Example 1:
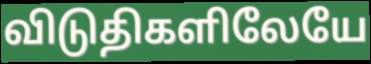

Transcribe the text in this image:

விடுதிகளிலேயே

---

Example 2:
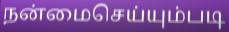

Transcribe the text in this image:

நன்மைசெய்யும்படி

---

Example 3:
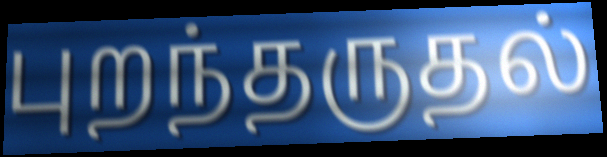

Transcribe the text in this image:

புறந்தருதல்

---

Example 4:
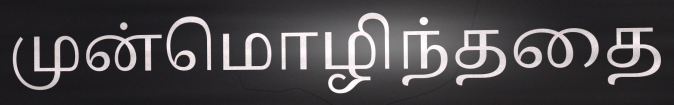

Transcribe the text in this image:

முன்மொழிந்ததை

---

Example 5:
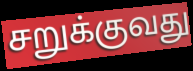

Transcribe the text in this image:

சறுக்குவது